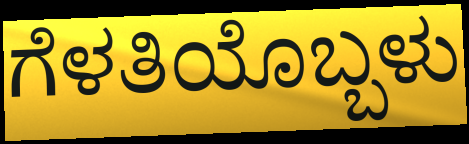
ಗೆಳತಿಯೊಬ್ಬಳು